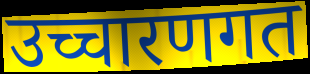
उच्चारणगत